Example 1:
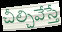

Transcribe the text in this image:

చీల్చివేస్తే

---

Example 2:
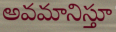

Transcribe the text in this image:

అవమానిస్తూ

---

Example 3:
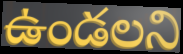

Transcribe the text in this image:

ఉండలని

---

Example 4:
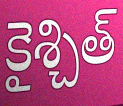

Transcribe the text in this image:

కైశ్చిత్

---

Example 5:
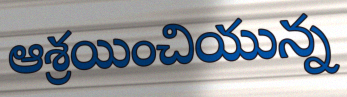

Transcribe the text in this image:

ఆశ్రయించియున్న